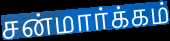
சன்மார்க்கம்